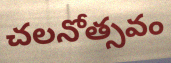
చలనోత్సవం